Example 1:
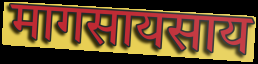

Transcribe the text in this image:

मागसायसाय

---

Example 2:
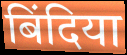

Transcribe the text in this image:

बिंदिया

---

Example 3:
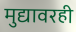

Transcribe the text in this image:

मुद्यावरही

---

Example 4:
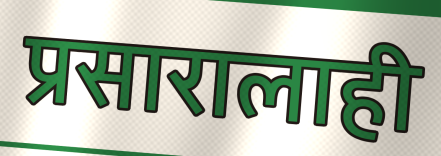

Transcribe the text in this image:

प्रसारालाही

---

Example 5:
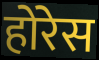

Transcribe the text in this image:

होरेस